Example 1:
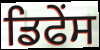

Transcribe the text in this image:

ਡਿਫੇਂਸ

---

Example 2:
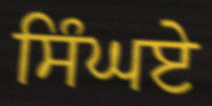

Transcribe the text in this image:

ਸਿੰਘਏ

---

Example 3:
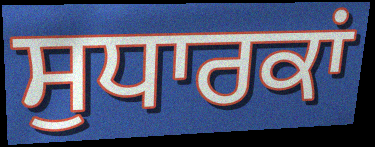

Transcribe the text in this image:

ਸੁਧਾਰਕਾਂ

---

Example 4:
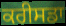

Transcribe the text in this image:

ਕਰੀਸਡਾ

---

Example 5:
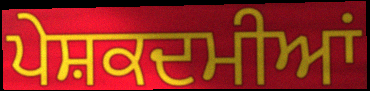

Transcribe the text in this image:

ਪੇਸ਼ਕਦਮੀਆਂ